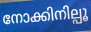
നോക്കിനില്പൂ